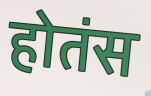
होतंस